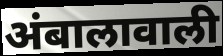
अंबालावाली